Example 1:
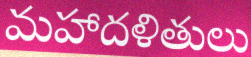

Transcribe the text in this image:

మహాదళితులు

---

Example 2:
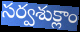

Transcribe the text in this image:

సర్వశుక్లాం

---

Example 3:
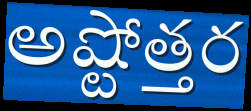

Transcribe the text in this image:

అష్టోత్తర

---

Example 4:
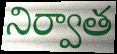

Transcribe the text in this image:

నిర్వాత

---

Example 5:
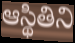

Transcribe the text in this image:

ఆస్థితిని